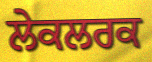
ਲੇਕਲਰਕ